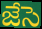
జేసె